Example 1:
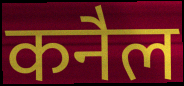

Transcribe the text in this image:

कनैल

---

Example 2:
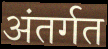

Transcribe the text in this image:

अंतर्गत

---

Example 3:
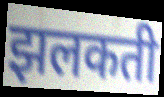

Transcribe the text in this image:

झलकती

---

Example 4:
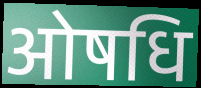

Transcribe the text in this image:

ओषधि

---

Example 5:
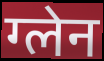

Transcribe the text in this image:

ग्लेन